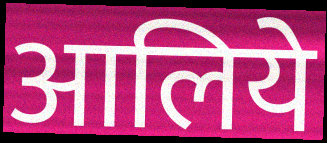
आलिये